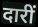
दारीं